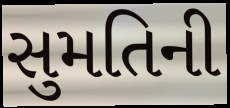
સુમતિની